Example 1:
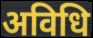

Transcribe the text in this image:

अविधि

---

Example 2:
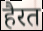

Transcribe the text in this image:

हैरत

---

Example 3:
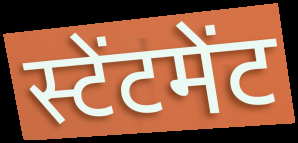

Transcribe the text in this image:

स्टेंटमेंट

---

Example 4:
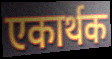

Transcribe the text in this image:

एकार्थक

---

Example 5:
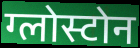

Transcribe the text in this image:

ग्लोस्टोन